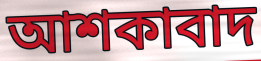
আশকাবাদ